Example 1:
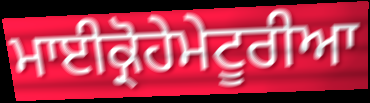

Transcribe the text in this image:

ਮਾਈਕ੍ਰੋਹੇਮੇਟੂਰੀਆ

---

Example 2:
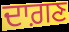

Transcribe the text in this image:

ਦਾਗ਼ਣ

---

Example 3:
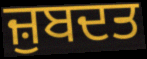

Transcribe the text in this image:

ਜ਼ੁਬਦਤ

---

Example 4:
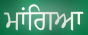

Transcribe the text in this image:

ਮਾਂਗਿਆ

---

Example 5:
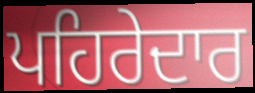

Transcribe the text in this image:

ਪਹਿਰੇਦਾਰ